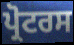
ਪ੍ਰੋਟਰਸ